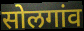
सोलगांव